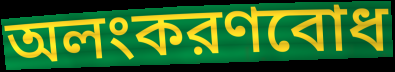
অলংকরণবোধ